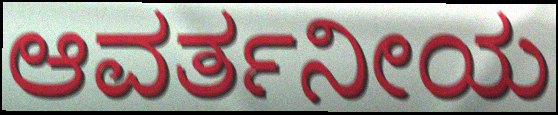
ಆವರ್ತನೀಯ